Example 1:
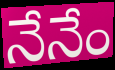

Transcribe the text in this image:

నేనేం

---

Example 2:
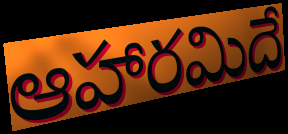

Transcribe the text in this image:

ఆహారమిదే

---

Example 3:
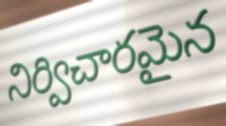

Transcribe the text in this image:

నిర్విచారమైన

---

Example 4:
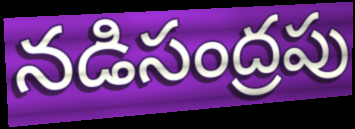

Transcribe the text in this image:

నడిసంద్రపు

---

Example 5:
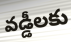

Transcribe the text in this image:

వడ్డీలకు